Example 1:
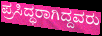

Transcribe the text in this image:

ಪ್ರಸಿದ್ಧರಾಗಿದ್ದವರು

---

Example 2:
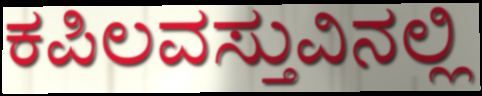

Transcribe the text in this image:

ಕಪಿಲವಸ್ತುವಿನಲ್ಲಿ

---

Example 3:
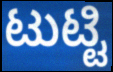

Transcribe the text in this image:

ಟುಟ್ಟಿ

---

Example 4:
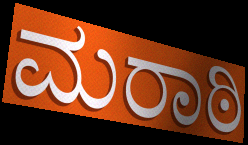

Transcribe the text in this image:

ಮರಾಠಿ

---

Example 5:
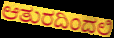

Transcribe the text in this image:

ಆತುರದಿಂದಲಿ